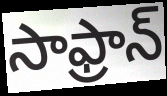
సాఫ్రాన్